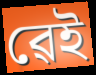
ৱেই